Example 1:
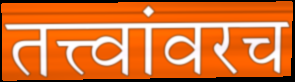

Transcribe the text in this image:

तत्त्वांवरच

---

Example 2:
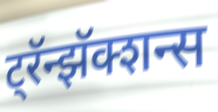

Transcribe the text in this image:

ट्रॅन्झॅक्शन्स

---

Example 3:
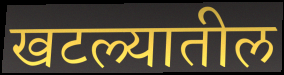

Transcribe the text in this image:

खटल्यातील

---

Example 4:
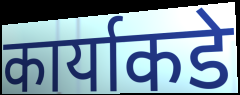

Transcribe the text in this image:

कार्याकडे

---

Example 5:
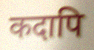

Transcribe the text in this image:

कदापि